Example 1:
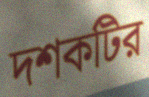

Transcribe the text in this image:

দশকটির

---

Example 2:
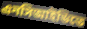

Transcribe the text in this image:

এনসিআইডিতে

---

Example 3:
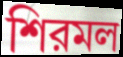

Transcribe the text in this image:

শিরমল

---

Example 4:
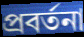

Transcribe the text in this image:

প্রবর্তনা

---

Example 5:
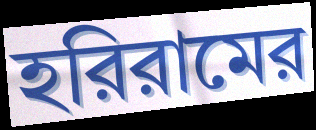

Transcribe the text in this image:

হরিরামের